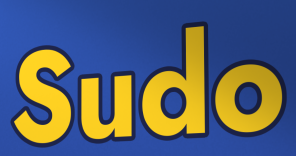
Sudo